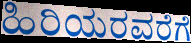
ಹಿರಿಯರವರೆಗೆ